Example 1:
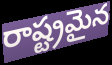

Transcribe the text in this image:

రాష్ట్రమైన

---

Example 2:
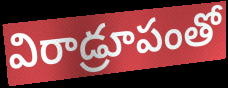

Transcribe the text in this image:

విరాడ్రూపంతో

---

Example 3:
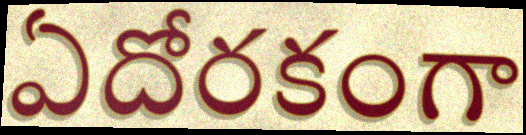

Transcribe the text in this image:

ఏదోరకంగా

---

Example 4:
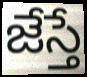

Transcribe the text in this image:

జేస్తే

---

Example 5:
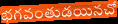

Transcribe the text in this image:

భగవంతుడయినచో